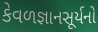
કેવળજ્ઞાનસૂર્યનો